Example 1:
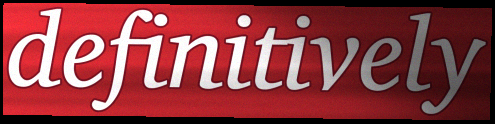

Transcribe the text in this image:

definitively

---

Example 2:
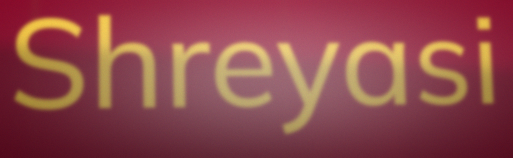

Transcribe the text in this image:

Shreyasi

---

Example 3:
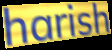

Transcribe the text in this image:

harish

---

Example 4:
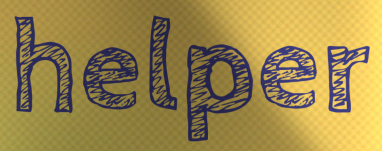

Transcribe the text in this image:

helper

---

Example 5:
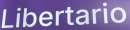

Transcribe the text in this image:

Libertario